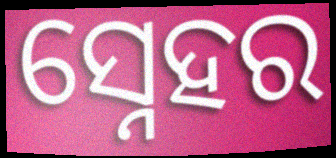
ସ୍ନେହର